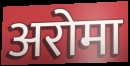
अरोमा